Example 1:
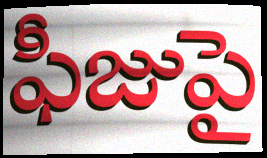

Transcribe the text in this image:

ఫీజుపై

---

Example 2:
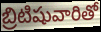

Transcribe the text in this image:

బ్రిటిషువారితో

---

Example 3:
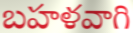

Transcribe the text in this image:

బహళవాగి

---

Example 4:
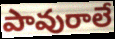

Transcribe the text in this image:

పావురాలే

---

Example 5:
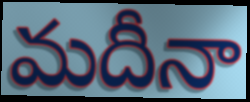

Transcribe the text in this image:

మదీనా